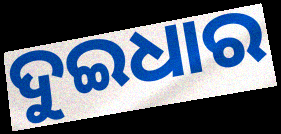
ଦୁଇଧାର